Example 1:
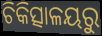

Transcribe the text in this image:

ଚିକିତ୍ସାଳୟରୁ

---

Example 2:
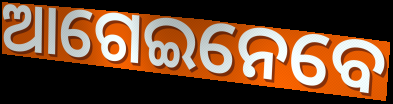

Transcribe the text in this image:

ଆଗେଇନେବେ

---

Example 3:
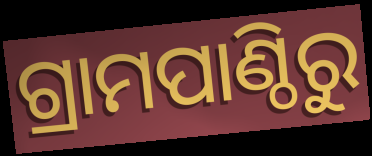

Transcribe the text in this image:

ଗ୍ରାମପାଣ୍ଠିରୁ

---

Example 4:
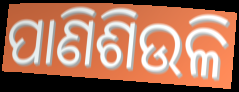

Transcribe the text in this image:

ପାଣିଶିଉଳି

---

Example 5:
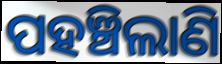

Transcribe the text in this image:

ପହଞ୍ଚିଲାଣି